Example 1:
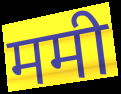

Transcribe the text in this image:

ममी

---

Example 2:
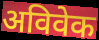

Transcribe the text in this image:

अविवेक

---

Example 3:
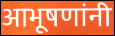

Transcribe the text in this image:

आभूषणांनी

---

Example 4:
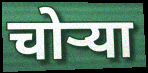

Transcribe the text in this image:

चोऱ्या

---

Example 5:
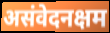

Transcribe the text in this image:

असंवेदनक्षम